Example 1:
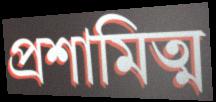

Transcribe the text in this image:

প্রশামিত্ম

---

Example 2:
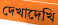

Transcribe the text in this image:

দেখাদেখি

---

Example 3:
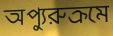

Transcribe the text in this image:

অপ্যুরুক্রমে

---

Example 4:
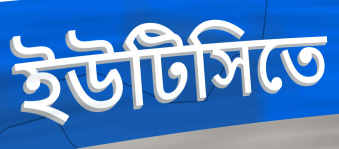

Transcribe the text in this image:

ইউটিসিতে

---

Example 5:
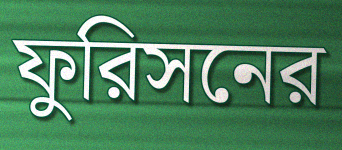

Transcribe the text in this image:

ফুরিসনের